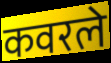
कवरले